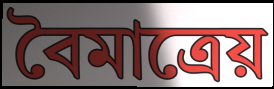
বৈমাত্রেয়